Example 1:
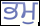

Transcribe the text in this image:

ਭਮੁ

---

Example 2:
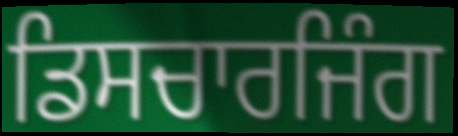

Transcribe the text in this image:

ਡਿਸਚਾਰਜਿੰਗ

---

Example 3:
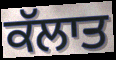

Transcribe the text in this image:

ਕੱਲਾਤ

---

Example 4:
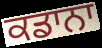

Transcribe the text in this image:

ਕਡਾਨਾ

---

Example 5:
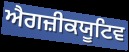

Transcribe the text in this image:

ਐਗਜ਼ੀਕਯੂਟਿਵ